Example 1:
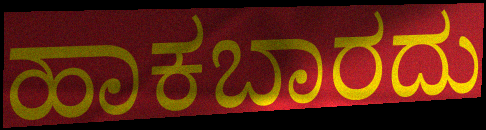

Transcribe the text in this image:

ಹಾಕಬಾರದು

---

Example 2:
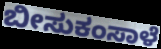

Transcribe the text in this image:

ಬೀಸುಕಂಸಾಳೆ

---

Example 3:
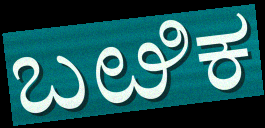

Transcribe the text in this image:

ಬೞಿಕ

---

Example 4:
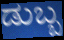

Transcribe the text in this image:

ಡುಬ್ಬ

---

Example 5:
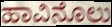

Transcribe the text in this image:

ಹಾವಿನೊಲು